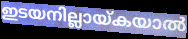
ഇടയനില്ലായ്കയാൽ